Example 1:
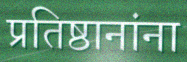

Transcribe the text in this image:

प्रतिष्ठानांना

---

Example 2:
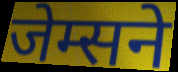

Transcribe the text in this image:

जेम्सने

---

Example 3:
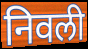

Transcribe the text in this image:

निवली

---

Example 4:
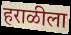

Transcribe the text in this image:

हराळीला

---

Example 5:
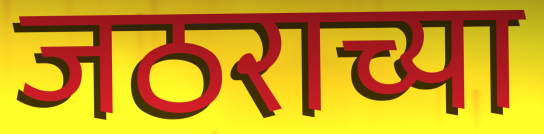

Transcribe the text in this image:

जठराच्या